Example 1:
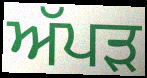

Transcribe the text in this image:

ਅੱਪੜ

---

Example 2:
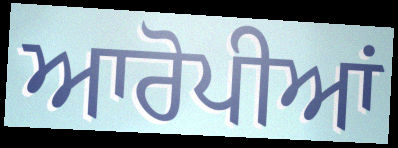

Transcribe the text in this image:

ਆਰੋਪੀਆਂ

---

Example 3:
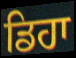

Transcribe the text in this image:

ਡਿਹਾ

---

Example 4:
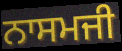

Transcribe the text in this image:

ਨਾਸਮਜੀ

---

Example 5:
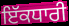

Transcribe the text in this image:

ਇੱਕਧਾਰੀ